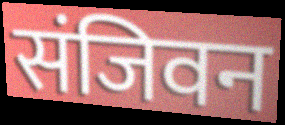
संजिवन